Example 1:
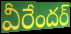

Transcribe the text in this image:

వీరేందర్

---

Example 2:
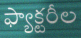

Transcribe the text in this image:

ఫ్యాక్టరీల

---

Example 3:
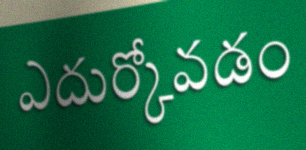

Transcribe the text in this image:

ఎదుర్కోవడం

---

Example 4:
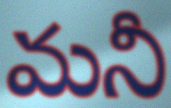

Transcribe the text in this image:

మనీ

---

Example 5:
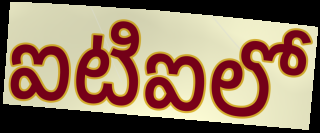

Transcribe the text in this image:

ఐటిఐలో